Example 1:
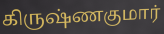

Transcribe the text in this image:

கிருஷ்ணகுமார்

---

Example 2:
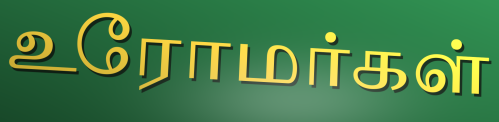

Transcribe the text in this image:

உரோமர்கள்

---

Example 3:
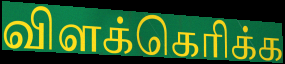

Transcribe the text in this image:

விளக்கெரிக்க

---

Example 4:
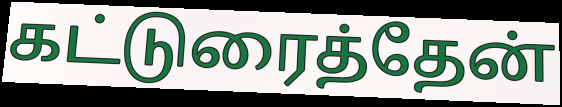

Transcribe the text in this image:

கட்டுரைத்தேன்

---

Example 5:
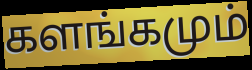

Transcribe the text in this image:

களங்கமும்